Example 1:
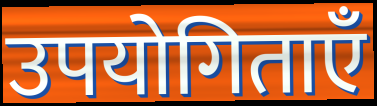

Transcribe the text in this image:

उपयोगिताएँ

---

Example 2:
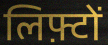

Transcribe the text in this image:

लिफ़्टों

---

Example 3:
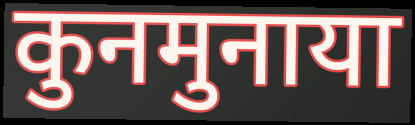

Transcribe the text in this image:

कुनमुनाया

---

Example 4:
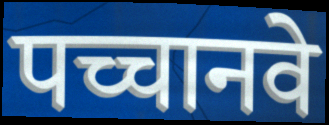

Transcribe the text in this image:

पच्चानवे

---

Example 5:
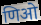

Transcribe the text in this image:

णिओ